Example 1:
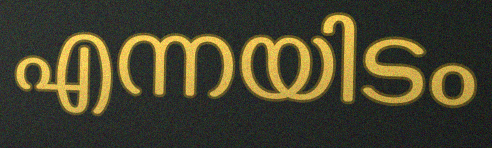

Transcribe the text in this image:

എന്നയിടം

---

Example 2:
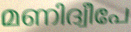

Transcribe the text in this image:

മണിദ്വീപേ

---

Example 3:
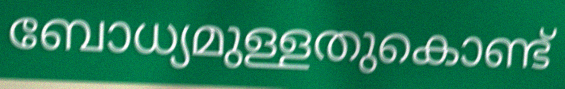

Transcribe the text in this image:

ബോധ്യമുള്ളതുകൊണ്ട്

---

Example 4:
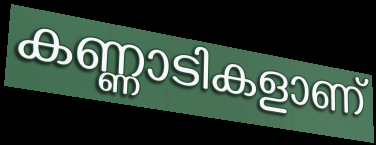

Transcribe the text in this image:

കണ്ണാടികളാണ്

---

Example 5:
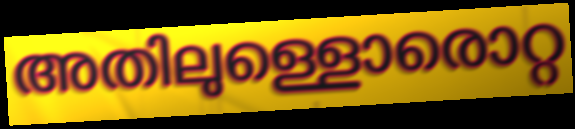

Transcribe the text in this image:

അതിലുള്ളൊരൊറ്റ